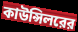
কাউন্সিলরের